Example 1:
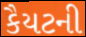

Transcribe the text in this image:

કૈયટની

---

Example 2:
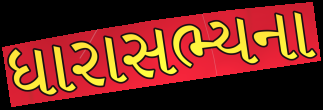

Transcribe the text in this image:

ધારાસભ્યના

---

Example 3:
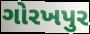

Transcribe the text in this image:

ગોરખપુર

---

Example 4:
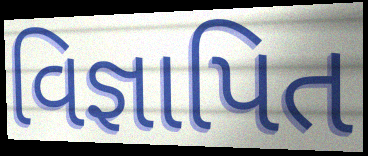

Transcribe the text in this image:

વિજ્ઞાપિત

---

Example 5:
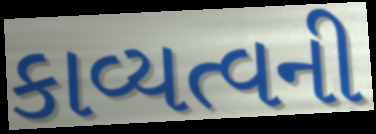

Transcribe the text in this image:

કાવ્યત્વની